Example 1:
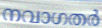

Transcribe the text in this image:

നവാഗതർ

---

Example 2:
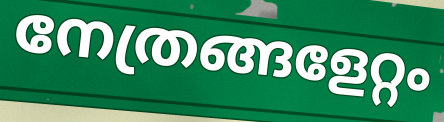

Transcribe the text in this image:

നേത്രങ്ങളേറ്റം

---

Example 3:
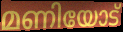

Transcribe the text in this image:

മണിയോട്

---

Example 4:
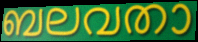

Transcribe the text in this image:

ബലവതാ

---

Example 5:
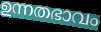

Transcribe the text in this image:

ഉന്നതഭാവം